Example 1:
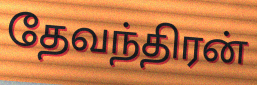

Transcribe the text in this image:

தேவந்திரன்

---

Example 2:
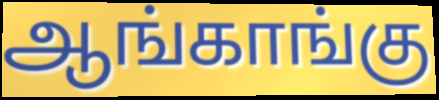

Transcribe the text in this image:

ஆங்காங்கு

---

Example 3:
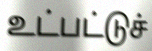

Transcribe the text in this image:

உட்பட்டுச்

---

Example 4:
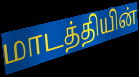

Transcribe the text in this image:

மாடத்தியின்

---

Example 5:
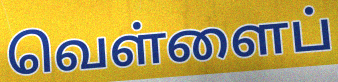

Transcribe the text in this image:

வெள்ளைப்